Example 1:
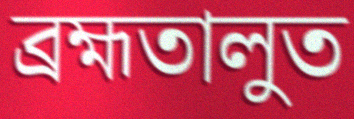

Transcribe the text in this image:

ব্ৰহ্মতালুত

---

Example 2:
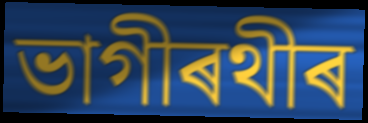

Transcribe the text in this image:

ভাগীৰথীৰ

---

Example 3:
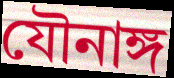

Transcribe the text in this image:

যৌনাঙ্গ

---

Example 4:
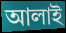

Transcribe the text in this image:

আলাই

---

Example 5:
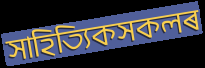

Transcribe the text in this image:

সাহিত্যিকসকলৰ